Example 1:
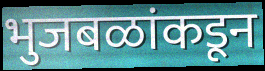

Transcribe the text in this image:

भुजबळांकडून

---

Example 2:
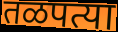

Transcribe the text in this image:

तळपत्या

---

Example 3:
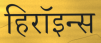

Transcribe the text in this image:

हिरॉइन्स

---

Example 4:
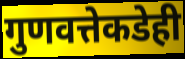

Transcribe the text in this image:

गुणवत्तेकडेही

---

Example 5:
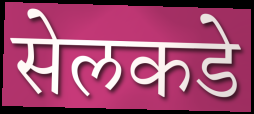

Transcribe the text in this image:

सेलकडे